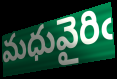
మధువైరిఁ